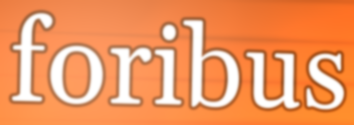
foribus